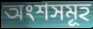
অংশসমূহ